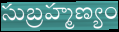
సుబ్రహ్మణ్యం